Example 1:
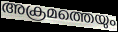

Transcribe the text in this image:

അക്രമത്തെയും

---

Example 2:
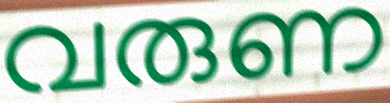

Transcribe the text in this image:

വരുണ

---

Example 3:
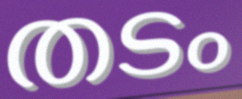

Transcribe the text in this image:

തടം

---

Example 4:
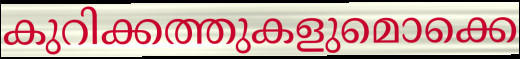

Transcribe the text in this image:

കുറിക്കത്തുകളുമൊക്കെ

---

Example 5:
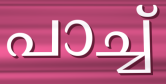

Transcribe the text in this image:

പാച്ച്